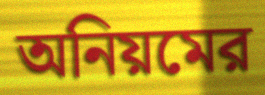
অনিয়মের